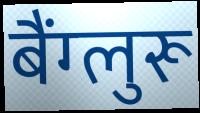
बैंग्लुरू